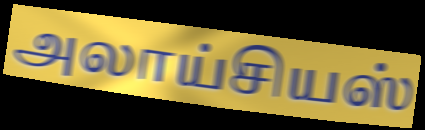
அலாய்சியஸ்